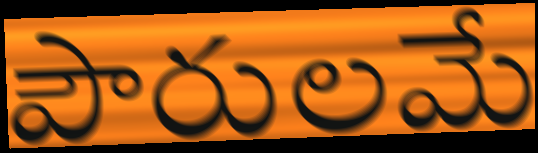
పౌరులమే